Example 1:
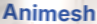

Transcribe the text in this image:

Animesh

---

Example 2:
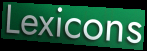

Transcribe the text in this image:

Lexicons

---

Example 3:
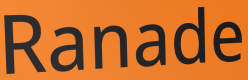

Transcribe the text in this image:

Ranade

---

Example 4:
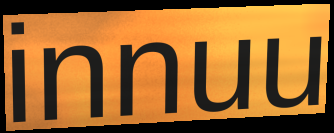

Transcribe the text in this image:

innuu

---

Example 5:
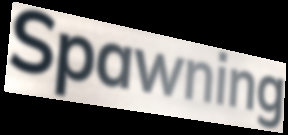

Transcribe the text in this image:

Spawning